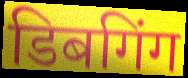
डिबगिंग